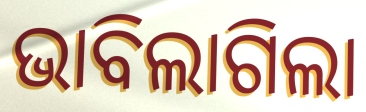
ଭାବିଲାଗିଲା